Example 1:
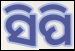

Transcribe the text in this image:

ସିପି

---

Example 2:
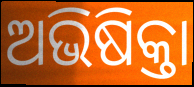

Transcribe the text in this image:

ଅଭିଷିକ୍ତା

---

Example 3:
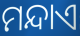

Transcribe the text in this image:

ମନ୍ଦାଏ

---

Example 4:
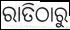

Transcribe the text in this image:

ରାତିଠାରୁ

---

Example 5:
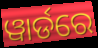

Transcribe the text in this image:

ୱାର୍ଡରେ